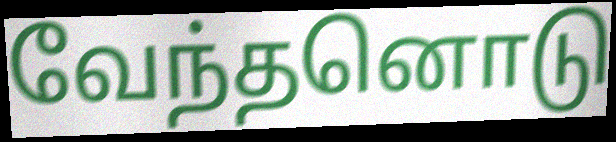
வேந்தனொடு